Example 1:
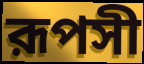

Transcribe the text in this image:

রূপসী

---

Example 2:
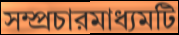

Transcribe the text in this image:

সম্প্রচারমাধ্যমটি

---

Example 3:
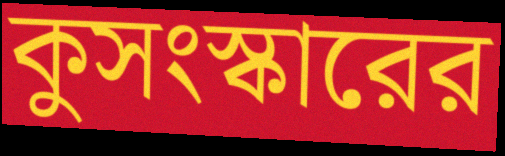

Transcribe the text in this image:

কুসংস্কারের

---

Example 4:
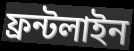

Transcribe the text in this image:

ফ্রন্টলাইন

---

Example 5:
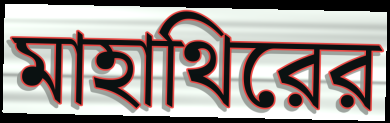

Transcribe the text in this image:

মাহাথিরের